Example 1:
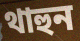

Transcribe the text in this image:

থাহুন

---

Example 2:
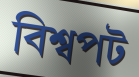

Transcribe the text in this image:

বিশ্বপট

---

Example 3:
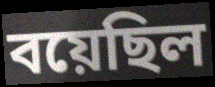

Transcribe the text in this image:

বয়েছিল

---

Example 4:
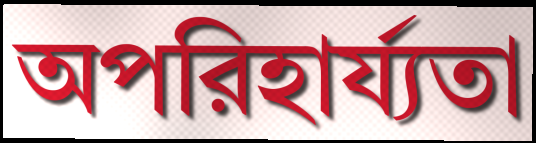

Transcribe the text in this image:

অপরিহার্য্যতা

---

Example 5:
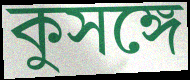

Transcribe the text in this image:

কুসঙ্গে